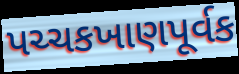
પચ્ચકખાણપૂર્વક